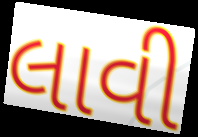
લાવી